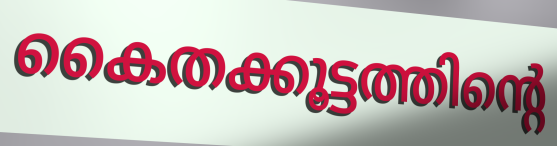
കൈതക്കൂട്ടത്തിന്റെ